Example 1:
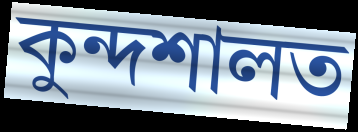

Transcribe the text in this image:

কুন্দশালত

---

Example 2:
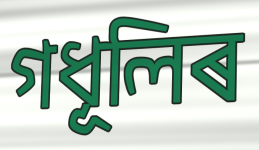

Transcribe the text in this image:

গধূলিৰ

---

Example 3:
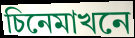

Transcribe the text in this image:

চিনেমাখনে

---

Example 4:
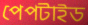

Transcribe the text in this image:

পেপটাইড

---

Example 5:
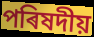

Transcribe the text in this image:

পৰিষদীয়